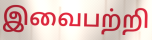
இவைபற்றி